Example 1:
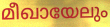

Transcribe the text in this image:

മീഖായേലും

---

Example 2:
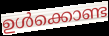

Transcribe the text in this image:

ഉൾക്കൊണ്ട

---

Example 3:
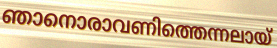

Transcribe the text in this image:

ഞാനൊരാവണിത്തെന്നലായ്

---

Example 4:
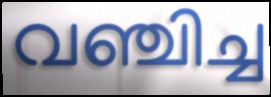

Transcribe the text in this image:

വഞ്ചിച്ച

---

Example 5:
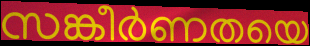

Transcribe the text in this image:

സങ്കീർണതയെ